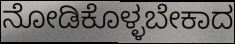
ನೋಡಿಕೊಳ್ಳಬೇಕಾದ